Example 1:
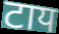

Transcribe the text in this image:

टाय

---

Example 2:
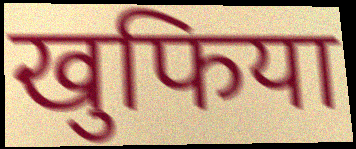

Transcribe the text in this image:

खुफिया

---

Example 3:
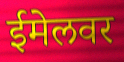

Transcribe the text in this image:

ईमेलवर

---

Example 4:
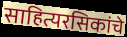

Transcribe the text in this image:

साहित्यरसिकांचे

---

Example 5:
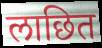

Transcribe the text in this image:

लाछित